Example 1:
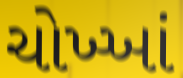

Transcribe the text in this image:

ચોખ્ખાં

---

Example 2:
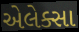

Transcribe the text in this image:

એલેક્સા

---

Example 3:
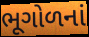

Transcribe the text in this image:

ભૂગોળનાં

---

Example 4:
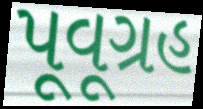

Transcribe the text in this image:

પૂવૂગ્રહ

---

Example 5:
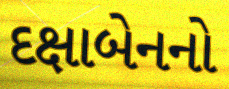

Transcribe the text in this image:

દક્ષાબેનનો